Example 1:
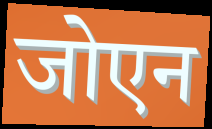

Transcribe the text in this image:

जोएन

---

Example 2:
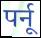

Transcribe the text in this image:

पर्नू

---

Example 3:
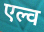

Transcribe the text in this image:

एल्व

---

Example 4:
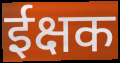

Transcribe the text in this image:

ईक्षक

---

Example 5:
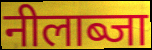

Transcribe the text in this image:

नीलाब्जा